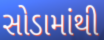
સોડામાંથી